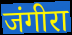
जंगीरा